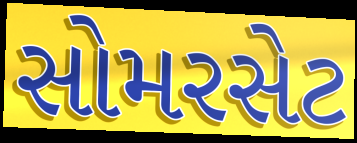
સોમરસેટ